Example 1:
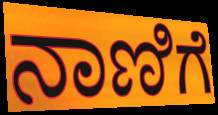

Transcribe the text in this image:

ನಾಣಿಗೆ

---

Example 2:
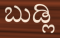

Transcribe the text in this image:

ಬುಡ್ಲಿ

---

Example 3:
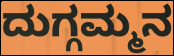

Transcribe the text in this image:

ದುಗ್ಗಮ್ಮನ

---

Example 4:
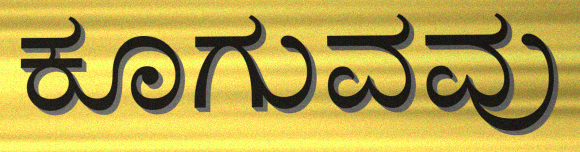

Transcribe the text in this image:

ಕೂಗುವವು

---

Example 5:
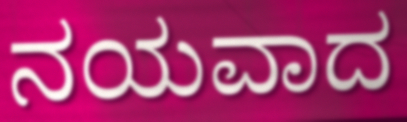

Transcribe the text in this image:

ನಯವಾದ